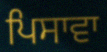
ਪਿਸਾਵਾ